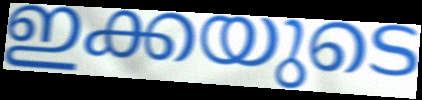
ഇക്കയുടെ